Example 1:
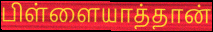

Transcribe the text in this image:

பிள்ளையாத்தான்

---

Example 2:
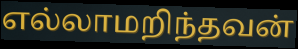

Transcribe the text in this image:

எல்லாமறிந்தவன்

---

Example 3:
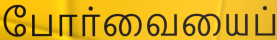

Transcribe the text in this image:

போர்வையைப்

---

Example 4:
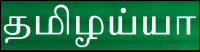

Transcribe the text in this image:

தமிழய்யா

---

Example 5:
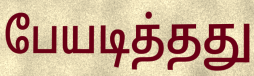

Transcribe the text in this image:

பேயடித்தது